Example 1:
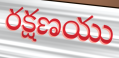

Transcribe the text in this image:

రక్షణయు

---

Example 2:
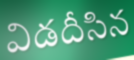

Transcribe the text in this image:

విడదీసిన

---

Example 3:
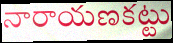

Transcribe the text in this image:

నారాయణకట్టు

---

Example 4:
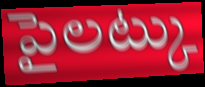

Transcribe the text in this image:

పైలట్కు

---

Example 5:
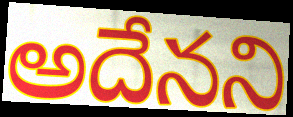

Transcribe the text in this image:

అదేనని